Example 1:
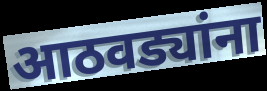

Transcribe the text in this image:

आठवड्यांना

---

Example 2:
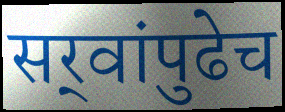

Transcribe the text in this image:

सर्वांपुढेच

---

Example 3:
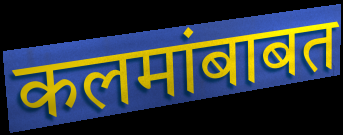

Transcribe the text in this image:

कलमांबाबत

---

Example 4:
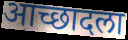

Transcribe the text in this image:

आच्छादला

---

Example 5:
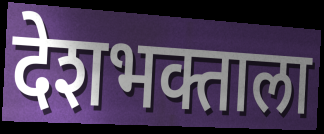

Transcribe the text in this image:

देशभक्ताला